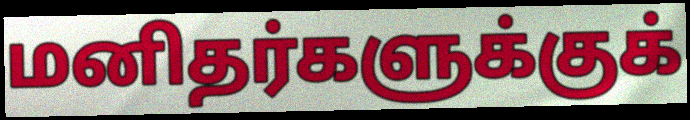
மனிதர்களுக்குக்